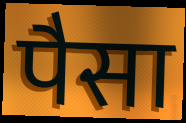
पैसा